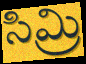
సిమ్రి